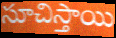
సూచిస్తాయి